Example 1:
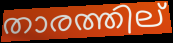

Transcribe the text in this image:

താരത്തില്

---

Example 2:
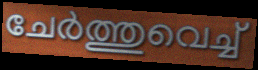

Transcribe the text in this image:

ചേർത്തുവെച്ച്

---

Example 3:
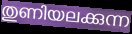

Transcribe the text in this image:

തുണിയലക്കുന്ന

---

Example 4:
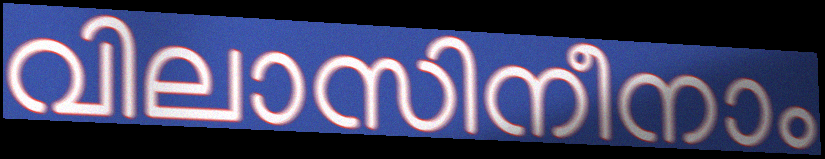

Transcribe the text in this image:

വിലാസിനീനാം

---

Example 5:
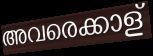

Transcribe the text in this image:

അവരെക്കാള്